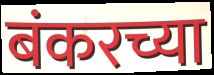
बंकरच्या